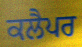
ਕਲੈਪਰ